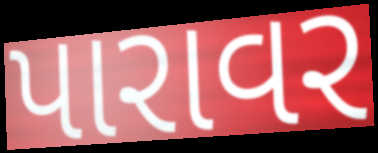
પારાવર